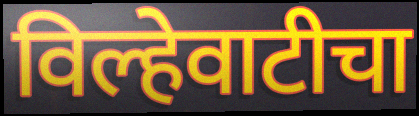
विल्हेवाटीचा